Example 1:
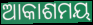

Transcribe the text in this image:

ଆକାଶମୟ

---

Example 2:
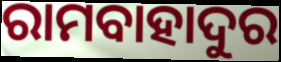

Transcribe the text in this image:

ରାମବାହାଦୁର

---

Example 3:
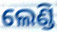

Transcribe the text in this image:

ଲେଣ୍ଡି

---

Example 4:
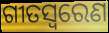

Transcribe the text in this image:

ଗୀତସ୍ବରେଣ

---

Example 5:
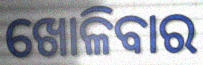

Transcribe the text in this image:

ଖୋଳିବାର